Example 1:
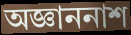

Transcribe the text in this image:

অজ্ঞাননাশ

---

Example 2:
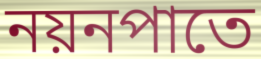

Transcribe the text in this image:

নয়নপাতে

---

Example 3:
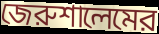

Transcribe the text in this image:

জেরুশালেমের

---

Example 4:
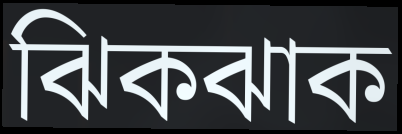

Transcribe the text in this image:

ঝিকঝাক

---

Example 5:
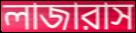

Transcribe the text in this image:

লাজারাস